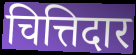
चित्तिदार